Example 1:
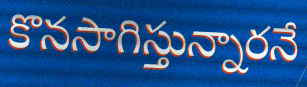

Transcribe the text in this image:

కొనసాగిస్తున్నారనే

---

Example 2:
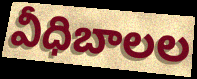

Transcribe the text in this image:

వీధిబాలల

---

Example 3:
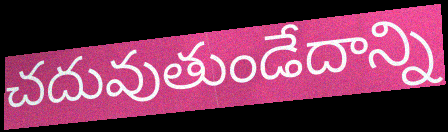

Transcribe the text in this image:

చదువుతుండేదాన్ని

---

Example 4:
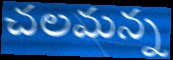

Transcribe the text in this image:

చలమన్న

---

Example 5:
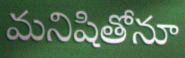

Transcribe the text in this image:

మనిషితోనూ